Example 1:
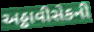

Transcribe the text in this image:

અઠ્ઠાવીસેકની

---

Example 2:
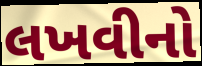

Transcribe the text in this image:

લખવીનો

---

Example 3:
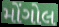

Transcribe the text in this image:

મોંગોલ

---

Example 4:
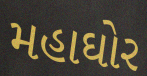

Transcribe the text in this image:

મહાઘોર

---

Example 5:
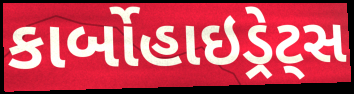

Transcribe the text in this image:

કાર્બોહાઇડ્રેટ્સ